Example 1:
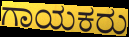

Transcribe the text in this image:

ಗಾಯಕರು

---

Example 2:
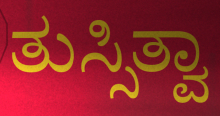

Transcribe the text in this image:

ತುಸ್ಸಿತ್ವಾ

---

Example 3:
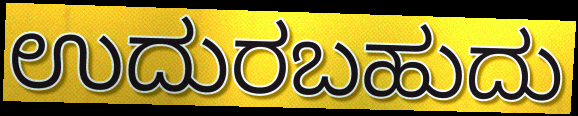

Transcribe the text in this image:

ಉದುರಬಹುದು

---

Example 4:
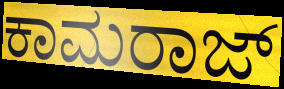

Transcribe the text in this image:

ಕಾಮರಾಜ್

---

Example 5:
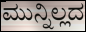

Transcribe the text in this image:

ಮುನ್ನಿಲ್ಲದ